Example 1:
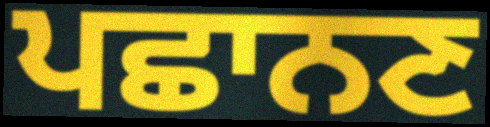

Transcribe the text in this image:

ਪਛਾਨਣ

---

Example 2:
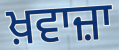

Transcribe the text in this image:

ਖ਼ਵਾਜ਼ਾ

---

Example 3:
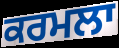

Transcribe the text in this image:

ਕਰਮਲਾ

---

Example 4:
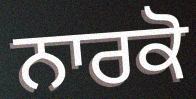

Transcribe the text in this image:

ਨਾਰਕੋ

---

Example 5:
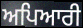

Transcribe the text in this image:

ਅਪਿਆਰੀ